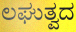
ಲಘುತ್ವದ